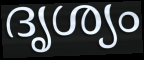
ദൃശ്യം